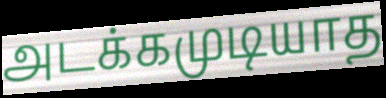
அடக்கமுடியாத